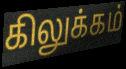
கிலுக்கம்